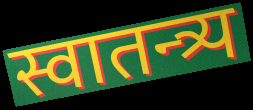
स्वातन्त्र्य